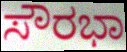
ಸೌರಭಾ